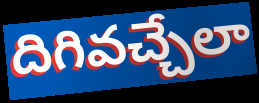
దిగివచ్చేలా